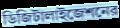
ডিজিটালাইজেশনের